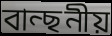
বান্ছনীয়